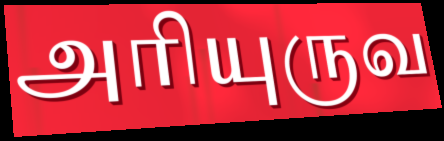
அரியுருவ